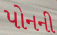
પોનની